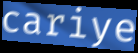
cariye